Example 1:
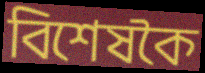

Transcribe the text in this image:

বিশেষকৈ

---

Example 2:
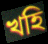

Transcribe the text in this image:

খহি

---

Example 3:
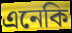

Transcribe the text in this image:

এনেকি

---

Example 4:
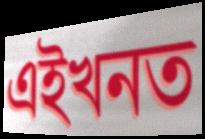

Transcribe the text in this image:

এইখনত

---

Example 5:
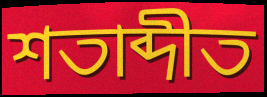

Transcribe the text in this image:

শতাব্দীত